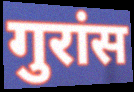
गुरांस